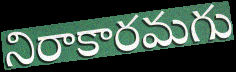
నిరాకారమగు